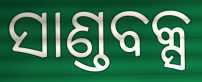
ସାଣ୍ଡବକ୍ସ